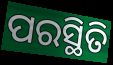
ପରସ୍ଥିତି